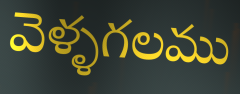
వెళ్ళగలము